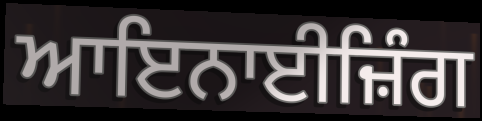
ਆਇਨਾਈਜ਼ਿੰਗ